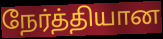
நேர்த்தியான